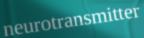
neurotransmitter